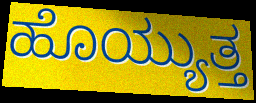
ಹೊಯ್ಯುತ್ತ